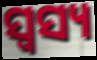
ସ୍ଵସ୍ୟ